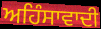
ਅਹਿੰਸਾਵਾਦੀ